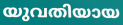
യുവതിയായ